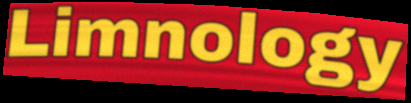
Limnology